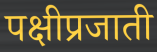
पक्षीप्रजाती